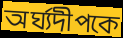
অর্ঘ্যদীপকে